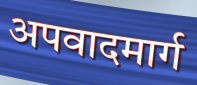
अपवादमार्ग